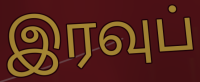
இரவுப்